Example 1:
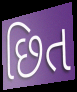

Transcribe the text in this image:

છિત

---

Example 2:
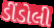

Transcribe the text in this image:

ડીંડોલી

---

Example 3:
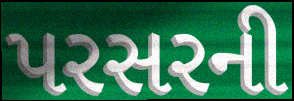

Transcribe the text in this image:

પરસરની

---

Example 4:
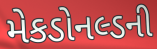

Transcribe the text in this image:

મેકડોનલ્ડની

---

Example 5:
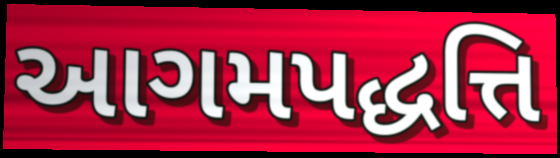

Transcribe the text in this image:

આગમપદ્ધત્તિ